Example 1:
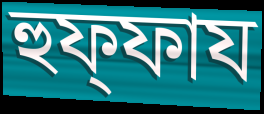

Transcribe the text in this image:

হুফ্ফায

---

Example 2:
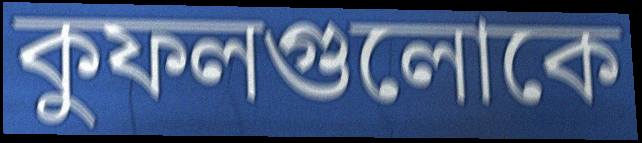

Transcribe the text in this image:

কুফলগুলোকে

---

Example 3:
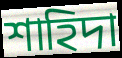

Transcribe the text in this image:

শাহিদা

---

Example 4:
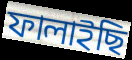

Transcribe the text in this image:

ফালাইছি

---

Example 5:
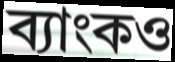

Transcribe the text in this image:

ব্যাংকও